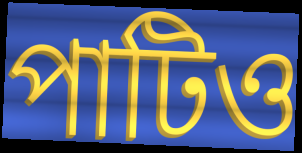
পাটিও